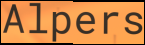
Alpers